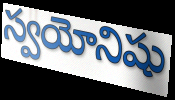
స్వయోనిషు